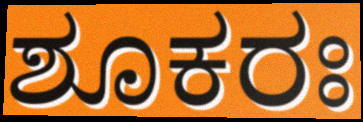
ಶೂಕರಃ